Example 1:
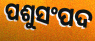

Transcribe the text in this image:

ପଶୁସଂପଦ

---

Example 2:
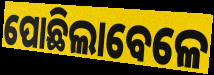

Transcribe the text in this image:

ପୋଛିଲାବେଳେ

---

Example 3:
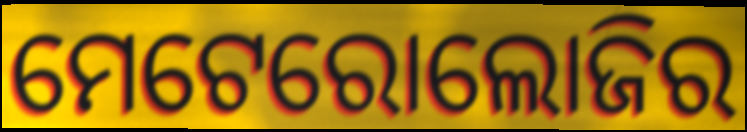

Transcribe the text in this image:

ମେଟେରୋଲୋଜିର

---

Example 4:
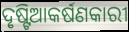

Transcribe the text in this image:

ଦୃଷ୍ଟିଆକର୍ଷଣକାରୀ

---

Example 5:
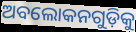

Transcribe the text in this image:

ଅବଲୋକନଗୁଡ଼ିକୁ